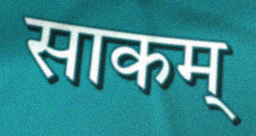
साकम्